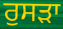
ਰੁਸੜਾ